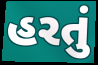
હરતું